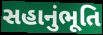
સહાનુંભૂતિ